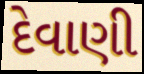
દેવાણી